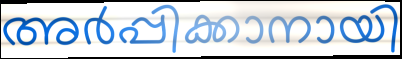
അർപ്പിക്കാനായി